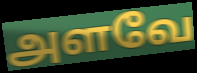
அளவே